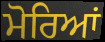
ਮੋਰਿਆਂ